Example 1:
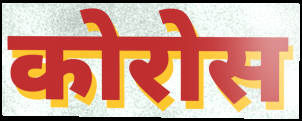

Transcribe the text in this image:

कोरोस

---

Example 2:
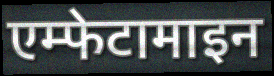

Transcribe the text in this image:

एम्फेटामाइन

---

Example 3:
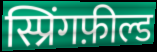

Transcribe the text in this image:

स्प्रिंगफ़ील्ड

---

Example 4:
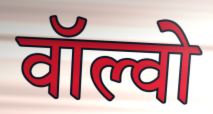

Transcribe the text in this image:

वॉल्वो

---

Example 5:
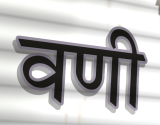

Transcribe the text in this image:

वणी